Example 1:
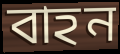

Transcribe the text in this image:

বাহন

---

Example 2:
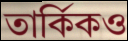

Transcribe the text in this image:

তার্কিকও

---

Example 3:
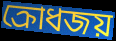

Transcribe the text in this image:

ক্রোধজয়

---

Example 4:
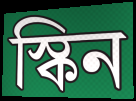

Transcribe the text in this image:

স্কিন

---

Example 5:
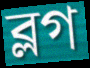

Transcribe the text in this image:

ব্লগ